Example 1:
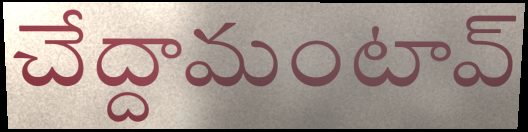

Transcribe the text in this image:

చేద్దామంటావ్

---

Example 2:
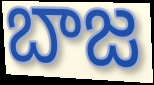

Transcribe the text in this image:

బాజ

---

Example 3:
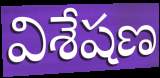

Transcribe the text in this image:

విశేషణ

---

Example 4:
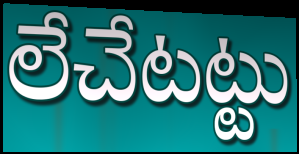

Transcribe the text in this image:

లేచేటట్టు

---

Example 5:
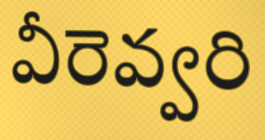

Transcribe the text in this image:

వీరెవ్వరి